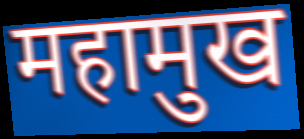
महामुख